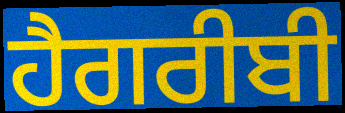
ਹੈਗਰੀਬੀ